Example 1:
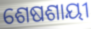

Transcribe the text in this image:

ଶେଷଶାୟୀ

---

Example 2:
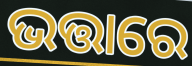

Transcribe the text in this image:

ଭତ୍ତାରେ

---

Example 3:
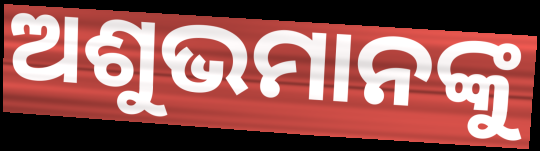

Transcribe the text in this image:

ଅଶୁଭମାନଙ୍କୁ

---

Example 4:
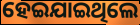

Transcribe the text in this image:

ହେଇଯାଇଥିଲେ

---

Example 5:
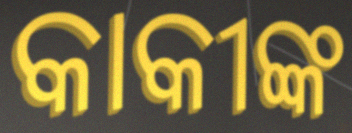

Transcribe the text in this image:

କାକୀଙ୍କ